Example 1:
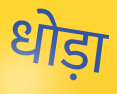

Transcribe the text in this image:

धोड़ा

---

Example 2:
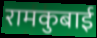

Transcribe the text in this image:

रामकुबाई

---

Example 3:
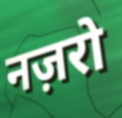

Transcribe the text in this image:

नज़रो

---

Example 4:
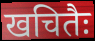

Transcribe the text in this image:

खचितैः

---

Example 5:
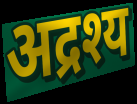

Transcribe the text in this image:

अद्रश्य